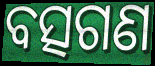
ବତ୍ସଗଣ